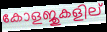
കോളജുകളില്